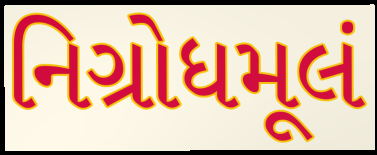
નિગ્રોધમૂલં